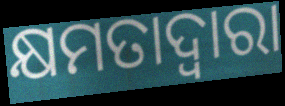
କ୍ଷମତାଦ୍ୱାରା